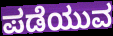
ಪಡೆಯುವ